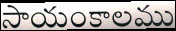
సాయంకాలము